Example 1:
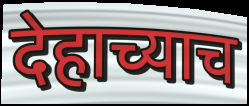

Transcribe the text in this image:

देहाच्याच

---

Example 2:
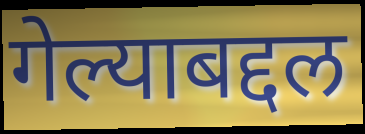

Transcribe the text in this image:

गेल्याबद्दल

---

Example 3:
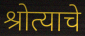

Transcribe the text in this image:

श्रोत्याचे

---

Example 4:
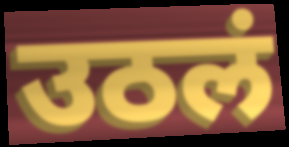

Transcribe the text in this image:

उठलं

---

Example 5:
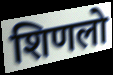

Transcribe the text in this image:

शिणलो